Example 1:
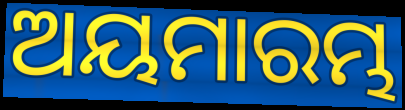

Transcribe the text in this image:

ଅୟମାରମ୍ଭ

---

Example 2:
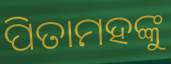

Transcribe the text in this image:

ପିତାମହଙ୍କୁ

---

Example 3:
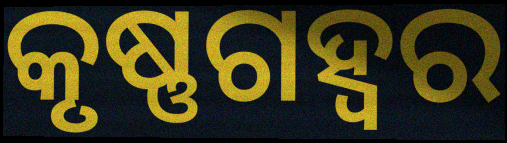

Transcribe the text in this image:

କୃଷ୍ଣଗହ୍ୱର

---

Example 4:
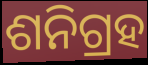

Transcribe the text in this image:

ଶନିଗ୍ରହ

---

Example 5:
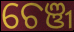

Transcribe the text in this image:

ଚେଞ୍ଜ